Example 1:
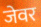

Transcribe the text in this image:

जेवर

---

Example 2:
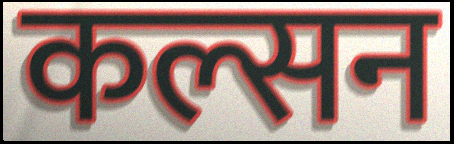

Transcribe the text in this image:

कल्सन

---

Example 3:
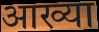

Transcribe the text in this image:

आख्या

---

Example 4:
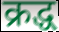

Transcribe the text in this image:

क्रद्ध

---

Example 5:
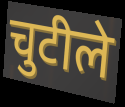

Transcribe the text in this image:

चुटीले